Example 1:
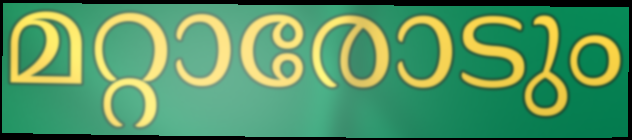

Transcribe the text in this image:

മറ്റാരോടും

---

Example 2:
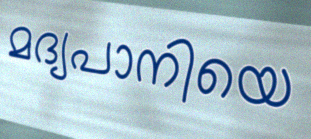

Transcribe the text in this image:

മദ്യപാനിയെ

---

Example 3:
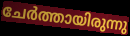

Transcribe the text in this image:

ചേർത്തായിരുന്നു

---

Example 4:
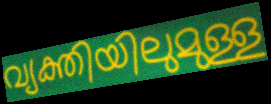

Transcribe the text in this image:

വ്യക്തിയിലുമുള്ള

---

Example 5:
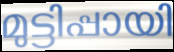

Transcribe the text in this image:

മുട്ടിപ്പായി